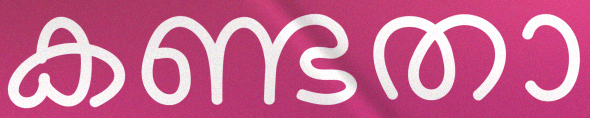
കണ്ടതാ